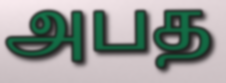
அபத